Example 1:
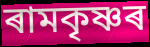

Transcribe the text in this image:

ৰামকৃষ্ণৰ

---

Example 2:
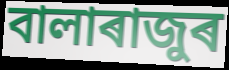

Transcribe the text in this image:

বালাৰাজুৰ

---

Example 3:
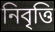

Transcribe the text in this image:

নিবৃত্তি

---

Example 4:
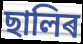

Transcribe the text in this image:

ছালিৰ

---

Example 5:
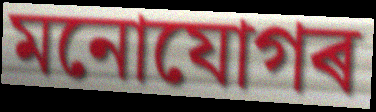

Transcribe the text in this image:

মনোযোগৰ